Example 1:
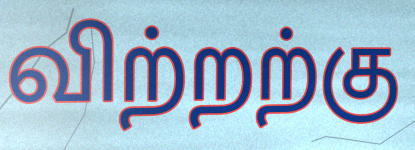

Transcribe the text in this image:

விற்றற்கு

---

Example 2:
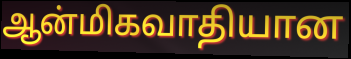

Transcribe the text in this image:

ஆன்மிகவாதியான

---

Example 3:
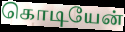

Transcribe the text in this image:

கொடியேன்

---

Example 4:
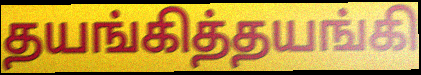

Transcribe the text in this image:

தயங்கித்தயங்கி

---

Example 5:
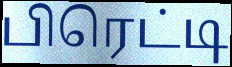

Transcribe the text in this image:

பிரெட்டி